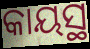
କାୟସ୍ଥ